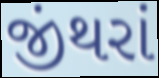
જીંથરાં